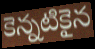
కెన్నటికైన